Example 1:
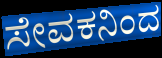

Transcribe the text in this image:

ಸೇವಕನಿಂದ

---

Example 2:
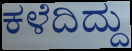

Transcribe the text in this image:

ಕಳೆದಿದ್ದು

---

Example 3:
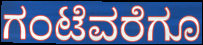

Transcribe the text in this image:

ಗಂಟೆವರೆಗೂ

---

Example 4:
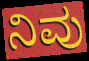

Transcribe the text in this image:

ನಿವು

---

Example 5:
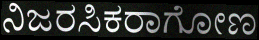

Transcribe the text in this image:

ನಿಜರಸಿಕರಾಗೋಣ